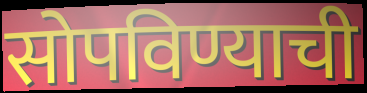
सोपविण्याची